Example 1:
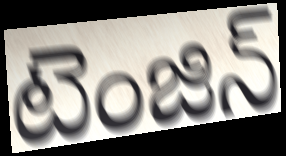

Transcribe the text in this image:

టెంజిన్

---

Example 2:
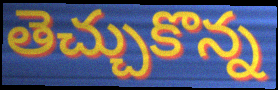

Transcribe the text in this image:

తెచ్చుకొన్న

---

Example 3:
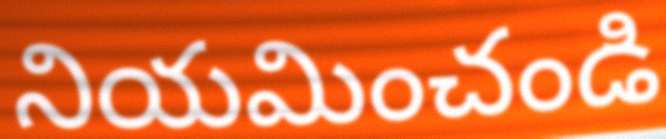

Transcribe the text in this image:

నియమించండి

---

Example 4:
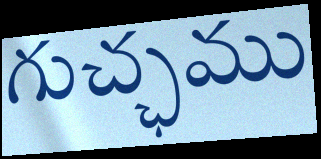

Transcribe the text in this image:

గుచ్ఛము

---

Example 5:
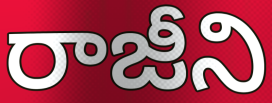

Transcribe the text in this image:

రాజీని